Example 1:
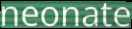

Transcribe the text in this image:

neonate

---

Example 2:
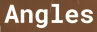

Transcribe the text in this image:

Angles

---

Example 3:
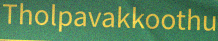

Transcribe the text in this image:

Tholpavakkoothu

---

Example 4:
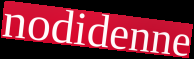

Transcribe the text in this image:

nodidenne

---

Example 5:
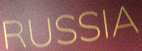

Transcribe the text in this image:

RUSSIA